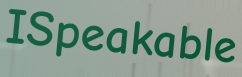
ISpeakable